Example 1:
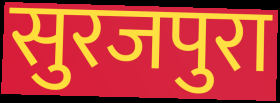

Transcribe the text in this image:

सुरजपुरा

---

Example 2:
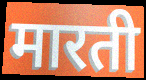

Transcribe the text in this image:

मारती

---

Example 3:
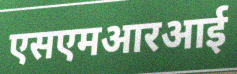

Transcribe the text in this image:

एसएमआरआई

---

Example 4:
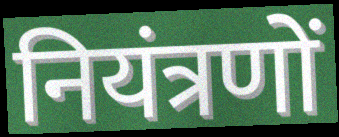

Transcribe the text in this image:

नियंत्रणों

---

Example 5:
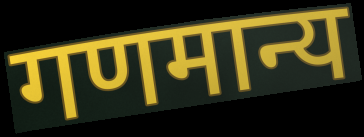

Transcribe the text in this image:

गणमान्य